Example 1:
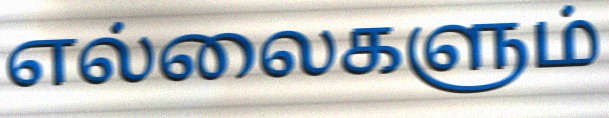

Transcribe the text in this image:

எல்லைகளும்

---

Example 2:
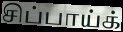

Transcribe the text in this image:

சிப்பாய்க்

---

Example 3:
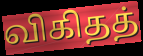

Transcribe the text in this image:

விகிதத்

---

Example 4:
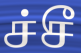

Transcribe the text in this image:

ச்சீ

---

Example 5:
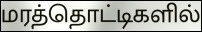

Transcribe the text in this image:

மரத்தொட்டிகளில்